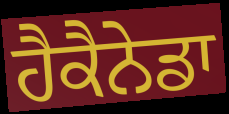
ਹੈਕੈਨੇਡਾ